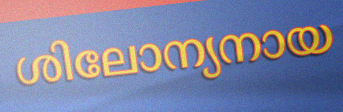
ശിലോന്യനായ